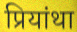
प्रियांथा